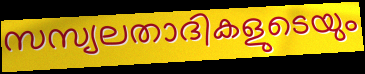
സസ്യലതാദികളുടെയും